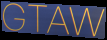
GTAW